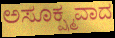
ಅಸೂಕ್ಷ್ಮವಾದ